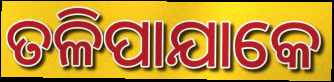
ତଳିପାଯାକେ